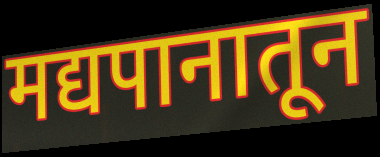
मद्यपानातून